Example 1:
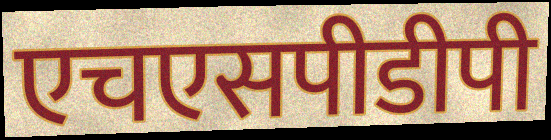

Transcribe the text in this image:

एचएसपीडीपी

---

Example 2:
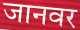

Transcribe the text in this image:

जानवर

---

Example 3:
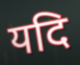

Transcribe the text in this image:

यदि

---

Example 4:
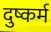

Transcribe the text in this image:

दुष्कर्म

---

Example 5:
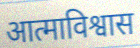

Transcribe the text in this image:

आत्माविश्वास